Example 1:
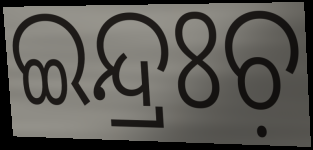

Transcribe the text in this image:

ଇନ୍ଦ୍ରଃଚ଼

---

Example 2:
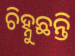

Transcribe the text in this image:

ଚିହ୍ନୁଛନ୍ତି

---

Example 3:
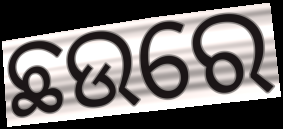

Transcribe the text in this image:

ଛଉରେ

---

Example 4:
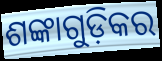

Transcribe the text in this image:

ଶଙ୍କାଗୁଡ଼ିକର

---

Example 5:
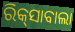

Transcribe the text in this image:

ରିକ୍‍ସାବାଲା